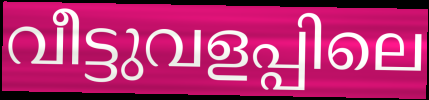
വീട്ടുവളപ്പിലെ